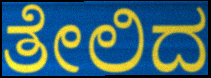
ತೇಲಿದ